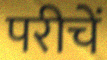
परीचें